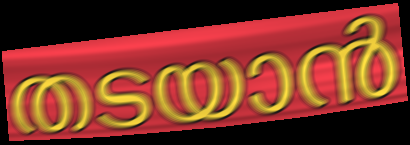
തടയാൻ